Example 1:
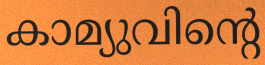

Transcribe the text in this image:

കാമ്യുവിന്റെ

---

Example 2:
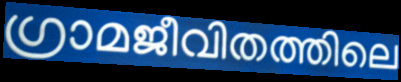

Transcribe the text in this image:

ഗ്രാമജീവിതത്തിലെ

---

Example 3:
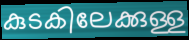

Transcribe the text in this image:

കുടകിലേക്കുള്ള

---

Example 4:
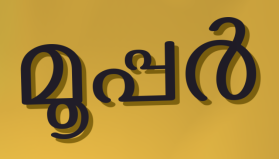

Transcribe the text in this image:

മൂപ്പർ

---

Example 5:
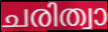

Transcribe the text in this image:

ചരിത്വാ